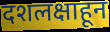
दशलक्षाहून